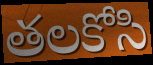
తలకోసి